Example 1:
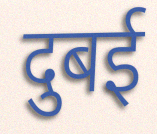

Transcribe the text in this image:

दुबई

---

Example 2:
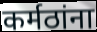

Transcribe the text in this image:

कर्मठांना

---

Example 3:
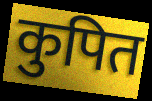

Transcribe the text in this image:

कुपित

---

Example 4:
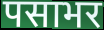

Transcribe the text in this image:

पसाभर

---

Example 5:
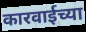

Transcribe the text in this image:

कारवाईच्या